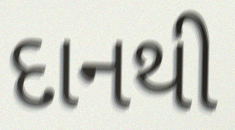
દાનથી